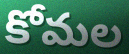
కోమల